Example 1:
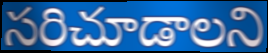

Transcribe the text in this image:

సరిచూడాలని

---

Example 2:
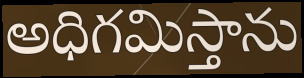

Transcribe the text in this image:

అధిగమిస్తాను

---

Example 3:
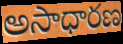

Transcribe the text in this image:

అసాధారణ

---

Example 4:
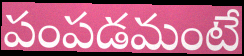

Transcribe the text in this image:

పంపడమంటే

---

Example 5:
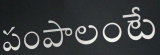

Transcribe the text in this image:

పంపాలంటే